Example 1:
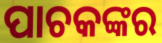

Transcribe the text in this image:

ପାଚକଙ୍କର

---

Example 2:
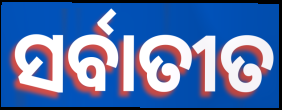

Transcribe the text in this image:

ସର୍ବାତୀତ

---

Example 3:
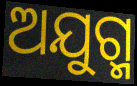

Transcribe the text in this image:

ଅଯୁଗ୍ମ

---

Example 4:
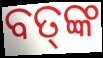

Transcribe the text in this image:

ବତ୍‍ଙ୍କ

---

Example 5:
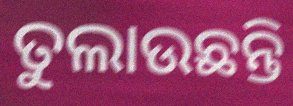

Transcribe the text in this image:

ତୁଲାଉଛନ୍ତି